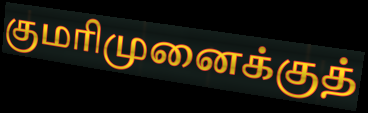
குமரிமுனைக்குத்